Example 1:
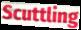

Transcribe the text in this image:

Scuttling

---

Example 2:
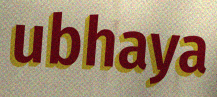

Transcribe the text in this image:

ubhaya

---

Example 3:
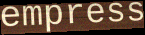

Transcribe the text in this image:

empress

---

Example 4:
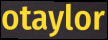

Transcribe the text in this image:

otaylor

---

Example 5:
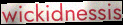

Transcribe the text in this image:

wickidnessis